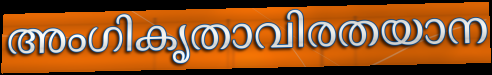
അംഗികൃതാവിരതയാന